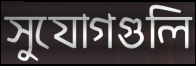
সুযোগগুলি